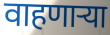
वाहणाऱ्या